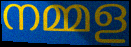
നമ്മള